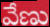
వేణు